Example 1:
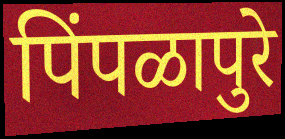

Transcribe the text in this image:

पिंपळापुरे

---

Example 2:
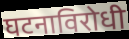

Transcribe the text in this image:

घटनाविरोधी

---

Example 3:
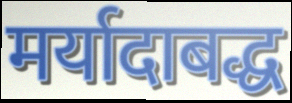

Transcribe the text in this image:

मर्यादाबद्ध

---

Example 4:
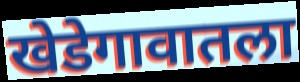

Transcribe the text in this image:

खेडेगावातला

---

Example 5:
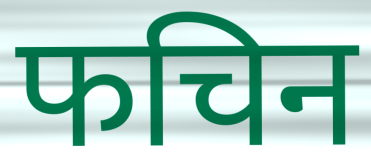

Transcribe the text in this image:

फचिन